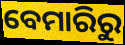
ବେମାରିରୁ